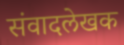
संवादलेखक